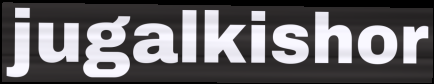
jugalkishor